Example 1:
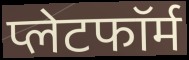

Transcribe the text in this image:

प्लेटफॉर्म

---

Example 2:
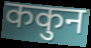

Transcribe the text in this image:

ककुन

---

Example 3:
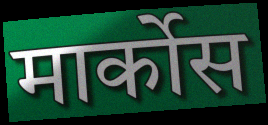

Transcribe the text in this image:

मार्कोस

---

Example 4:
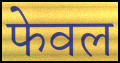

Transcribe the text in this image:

फेवल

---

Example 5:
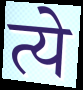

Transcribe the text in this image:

त्ये